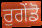
ਰੁਗੇਂਡੋ